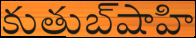
కుతుబ్‌షాహి